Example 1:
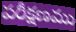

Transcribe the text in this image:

పరీక్షణము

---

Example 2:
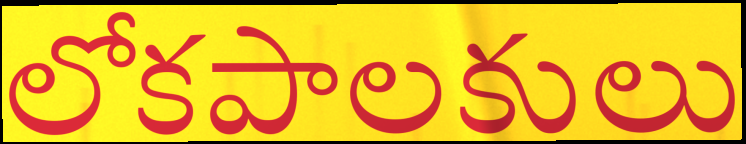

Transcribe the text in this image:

లోకపాలకులు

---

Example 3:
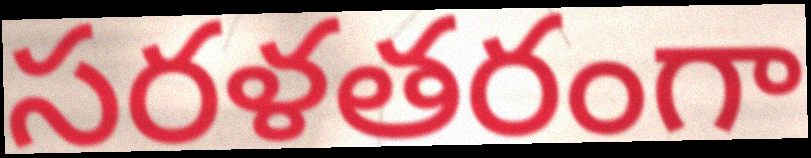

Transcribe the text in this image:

సరళతరంగా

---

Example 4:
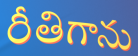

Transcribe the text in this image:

రీతిగాను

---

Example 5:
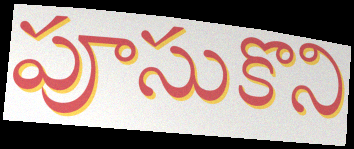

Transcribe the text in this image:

పూసుకొని